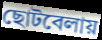
ছোটবেলায়